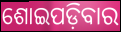
ଶୋଇପଡ଼ିବାର